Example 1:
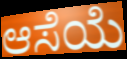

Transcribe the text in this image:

ಆಸೆಯೆ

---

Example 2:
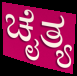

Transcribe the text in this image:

ಚೈತ್ಯ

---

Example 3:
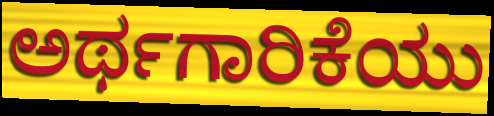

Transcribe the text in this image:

ಅರ್ಥಗಾರಿಕೆಯು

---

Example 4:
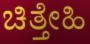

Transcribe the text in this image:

ಚಿತ್ತೇಹಿ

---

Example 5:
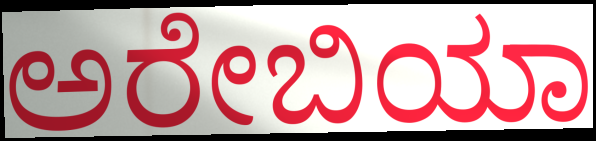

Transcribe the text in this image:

ಅರೇಬಿಯಾ